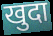
खुदा